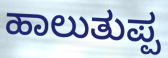
ಹಾಲುತುಪ್ಪ